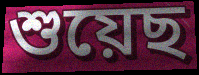
শুয়েছ